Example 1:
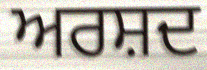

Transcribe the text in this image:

ਅਰਸ਼ਦ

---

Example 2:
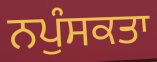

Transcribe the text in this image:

ਨਪੁੰਸਕਤਾ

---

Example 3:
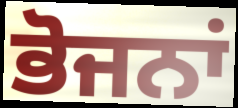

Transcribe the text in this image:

ਭੋਜਨਾਂ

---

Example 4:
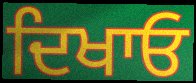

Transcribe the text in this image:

ਦਿਖਾਓ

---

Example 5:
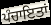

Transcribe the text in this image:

ਪੰਚਾਇਤਾਂ